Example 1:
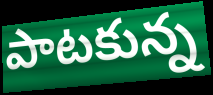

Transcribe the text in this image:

పాటకున్న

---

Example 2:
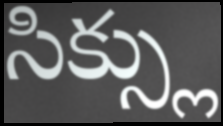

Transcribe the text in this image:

సిక్స్లు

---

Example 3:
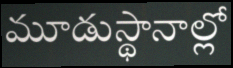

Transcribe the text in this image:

మూడుస్థానాల్లో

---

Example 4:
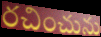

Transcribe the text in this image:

రచించును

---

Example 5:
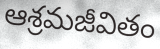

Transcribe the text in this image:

ఆశ్రమజీవితం